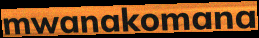
mwanakomana